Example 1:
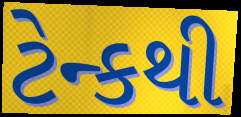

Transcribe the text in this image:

ટેન્કથી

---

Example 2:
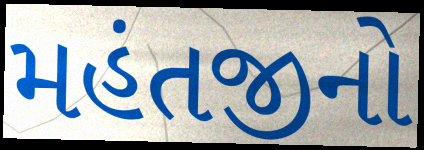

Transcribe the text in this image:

મહંતજીનો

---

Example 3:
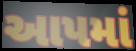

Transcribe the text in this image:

આપમાં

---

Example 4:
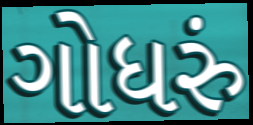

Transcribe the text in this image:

ગોધરું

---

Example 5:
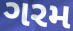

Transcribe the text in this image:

ગરમ